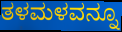
ತಳಮಳವನ್ನೂ